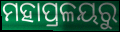
ମହାପ୍ରଳୟରୁ